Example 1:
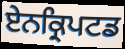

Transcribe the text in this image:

ਏਨਕ੍ਰਿਪਟਡ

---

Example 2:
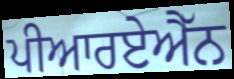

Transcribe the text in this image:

ਪੀਆਰਏਐੱਨ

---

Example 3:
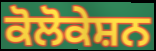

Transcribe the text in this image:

ਕੋਲੋਕੇਸ਼ਨ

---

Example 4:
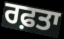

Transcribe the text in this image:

ਰਫ਼ਤਾ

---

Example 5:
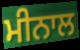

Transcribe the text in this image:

ਮੀਨਾਲ